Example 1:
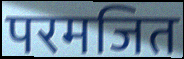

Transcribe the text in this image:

परमजित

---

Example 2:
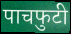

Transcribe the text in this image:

पाचफुटी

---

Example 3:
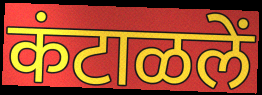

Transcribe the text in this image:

कंटाळलें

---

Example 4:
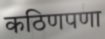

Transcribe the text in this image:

कठिणपणा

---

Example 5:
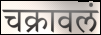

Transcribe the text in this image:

चक्रावलं